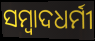
ସମ୍ବାଦଧର୍ମୀ